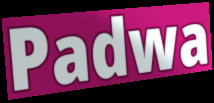
Padwa